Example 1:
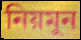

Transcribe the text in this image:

নিয়মুন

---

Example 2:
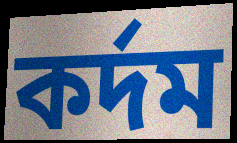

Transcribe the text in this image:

কর্দম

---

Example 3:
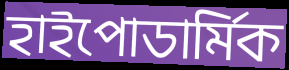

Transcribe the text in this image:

হাইপোডার্মিক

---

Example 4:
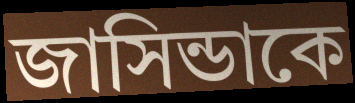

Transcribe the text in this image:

জাসিন্ডাকে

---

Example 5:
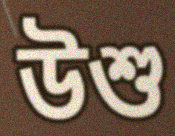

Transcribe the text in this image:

উশু